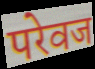
परेवज